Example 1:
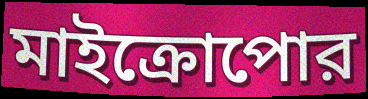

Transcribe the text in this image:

মাইক্রোপোর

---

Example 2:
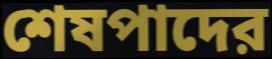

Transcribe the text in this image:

শেষপাদের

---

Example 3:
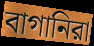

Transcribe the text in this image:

বাগানিরা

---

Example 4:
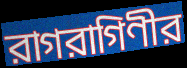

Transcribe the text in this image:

রাগরাগিণীর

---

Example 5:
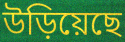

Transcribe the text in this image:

উড়িয়েছে